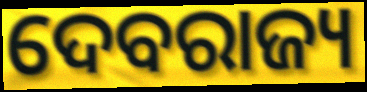
ଦେବରାଜ୍ୟ